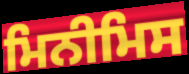
ਮਿਨੀਮਿਸ